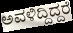
ಅವಳಿದ್ದಿದ್ದರೆ